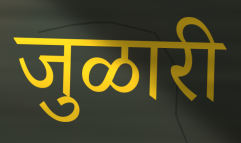
जुळारी